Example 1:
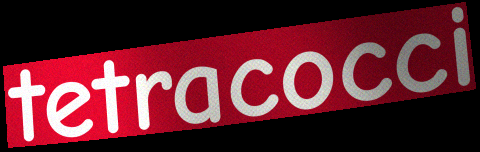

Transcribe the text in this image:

tetracocci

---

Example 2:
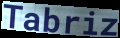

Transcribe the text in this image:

Tabriz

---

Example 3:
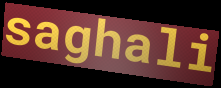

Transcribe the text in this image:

saghali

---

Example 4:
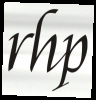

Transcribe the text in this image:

rhp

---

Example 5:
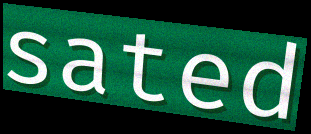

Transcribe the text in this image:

sated